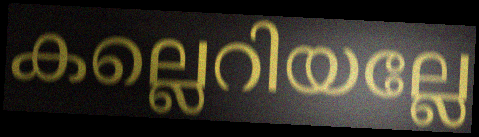
കല്ലെറിയല്ലേ